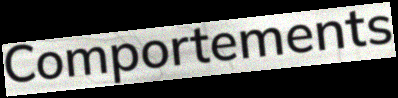
Comportements